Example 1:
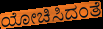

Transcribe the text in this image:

ಯೋಚಿಸಿದಂತೆ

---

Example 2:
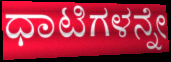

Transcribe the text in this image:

ಧಾಟಿಗಳನ್ನೇ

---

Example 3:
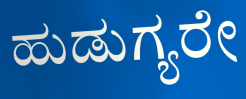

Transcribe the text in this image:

ಹುಡುಗ್ಯರೇ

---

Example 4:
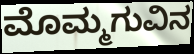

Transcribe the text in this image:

ಮೊಮ್ಮಗುವಿನ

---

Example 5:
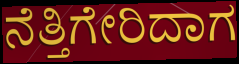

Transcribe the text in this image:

ನೆತ್ತಿಗೇರಿದಾಗ